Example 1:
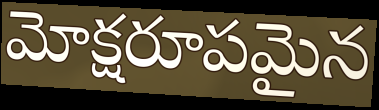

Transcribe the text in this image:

మోక్షరూపమైన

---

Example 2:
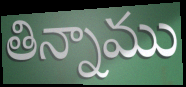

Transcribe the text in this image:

తిన్నాము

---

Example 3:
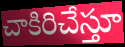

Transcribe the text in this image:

చాకిరిచేస్తూ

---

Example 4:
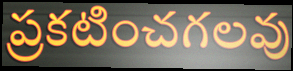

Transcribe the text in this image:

ప్రకటించగలవు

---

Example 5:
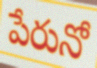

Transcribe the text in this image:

పేరునో